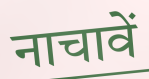
नाचावें